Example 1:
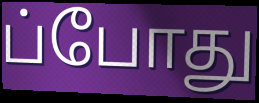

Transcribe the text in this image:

ப்போது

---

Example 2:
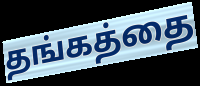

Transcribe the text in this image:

தங்கத்தை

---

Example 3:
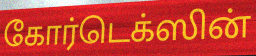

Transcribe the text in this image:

கோர்டெக்ஸின்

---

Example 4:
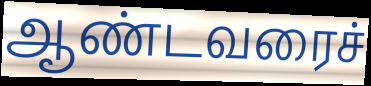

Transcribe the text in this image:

ஆண்டவரைச்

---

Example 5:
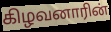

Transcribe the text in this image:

கிழவனாரின்